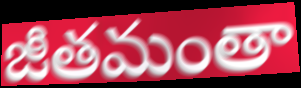
జీతమంతా